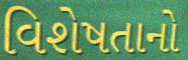
વિશેષતાનો